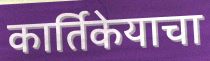
कार्तिकेयाचा